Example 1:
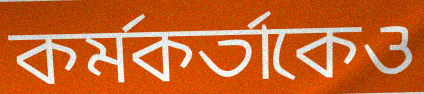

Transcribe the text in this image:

কর্মকর্তাকেও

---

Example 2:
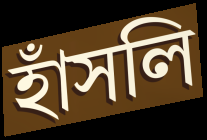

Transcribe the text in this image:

হাঁসলি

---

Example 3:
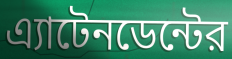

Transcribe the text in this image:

এ্যাটেনডেন্টের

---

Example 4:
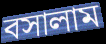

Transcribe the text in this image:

বসালাম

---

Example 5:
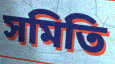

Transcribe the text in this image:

সমিতি